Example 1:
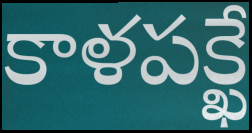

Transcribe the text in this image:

కాళపక్ఖే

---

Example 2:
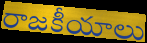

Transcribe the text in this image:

రాజకీయాలు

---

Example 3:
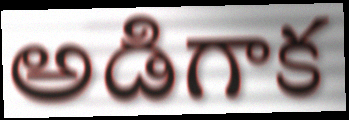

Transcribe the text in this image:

అడిగాక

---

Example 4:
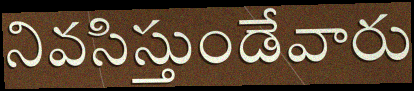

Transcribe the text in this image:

నివసిస్తుండేవారు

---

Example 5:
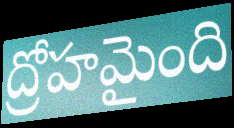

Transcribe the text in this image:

ద్రోహమైంది